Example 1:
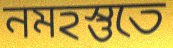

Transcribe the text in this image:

নমহস্তুতে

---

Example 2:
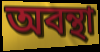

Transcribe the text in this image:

অবন্থা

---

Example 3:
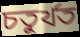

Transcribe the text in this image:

চতুর্থত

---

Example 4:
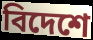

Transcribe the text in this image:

বিদেশে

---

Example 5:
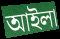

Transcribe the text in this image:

আইলা